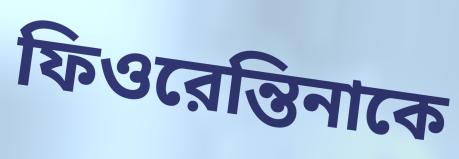
ফিওরেন্তিনাকে